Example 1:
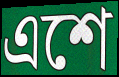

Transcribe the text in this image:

এশে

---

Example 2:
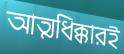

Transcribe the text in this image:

আত্মধিক্কারই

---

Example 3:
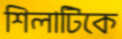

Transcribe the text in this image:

শিলাটিকে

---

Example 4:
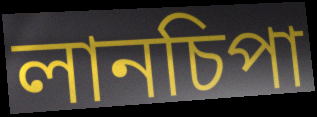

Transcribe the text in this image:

লানচিপা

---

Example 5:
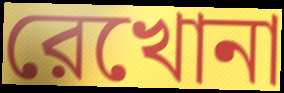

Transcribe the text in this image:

রেখোনা